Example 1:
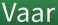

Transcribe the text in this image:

Vaar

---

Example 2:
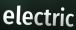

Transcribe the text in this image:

electric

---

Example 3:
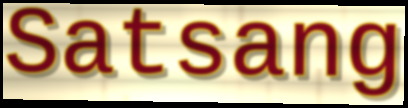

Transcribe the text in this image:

Satsang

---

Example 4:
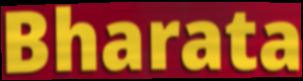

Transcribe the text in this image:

Bharata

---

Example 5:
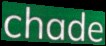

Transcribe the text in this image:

chade